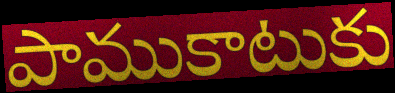
పాముకాటుకు